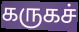
கருகச்